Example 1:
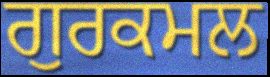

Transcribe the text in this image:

ਗੁਰਕਮਲ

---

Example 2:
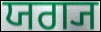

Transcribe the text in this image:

ਯਗ੍ਯ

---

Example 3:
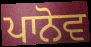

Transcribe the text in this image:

ਪਾਨੋਵ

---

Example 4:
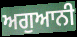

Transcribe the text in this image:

ਅਗੁਆਨੀ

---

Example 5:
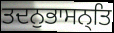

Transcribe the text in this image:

ਤਦਨੁਭਾਸਨ੍ਤਿ